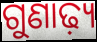
ଗୁଣାଢ଼୍ୟ